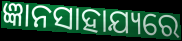
ଜ୍ଞାନସାହାଯ୍ୟରେ